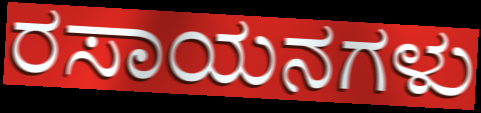
ರಸಾಯನಗಳು